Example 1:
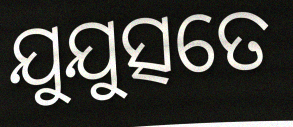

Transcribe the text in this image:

ଯୁଯୁତ୍ସତେ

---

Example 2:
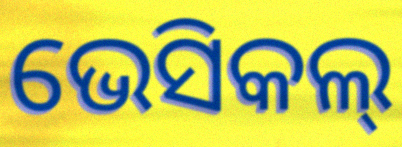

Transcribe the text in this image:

ଭେସିକଲ୍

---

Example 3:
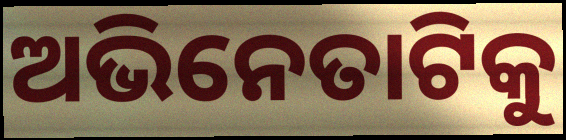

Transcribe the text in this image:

ଅଭିନେତାଟିକୁ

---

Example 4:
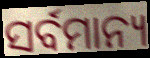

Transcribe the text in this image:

ସର୍ବମାନ୍ୟ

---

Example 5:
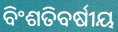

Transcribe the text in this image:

ବିଂଶତିବର୍ଷୀୟ